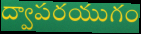
ద్వాపరయుగం